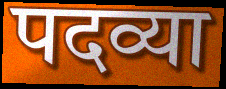
पदव्या